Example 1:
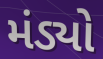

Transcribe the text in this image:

મંડ્યો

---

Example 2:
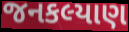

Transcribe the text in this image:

જનકલ્યાણ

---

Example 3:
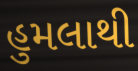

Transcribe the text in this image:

હુમલાથી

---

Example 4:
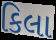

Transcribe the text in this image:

કિલા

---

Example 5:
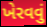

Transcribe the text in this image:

ખેરવવું